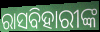
ରାସବିହାରୀଙ୍କ